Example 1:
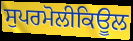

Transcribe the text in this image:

ਸੁਪਰਮੋਲੀਕਿਊਲ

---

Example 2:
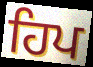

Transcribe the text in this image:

ਹਿਪ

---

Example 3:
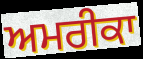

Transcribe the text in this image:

ਅਮਰੀਕਾ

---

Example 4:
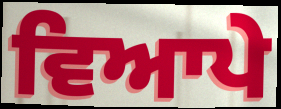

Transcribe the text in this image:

ਵਿਆਪੇ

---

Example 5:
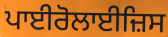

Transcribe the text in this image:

ਪਾਈਰੋਲਾਈਜ਼ਿਸ